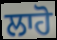
ਲਾਹੋ